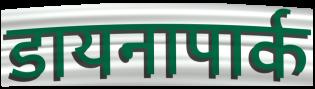
डायनापार्क